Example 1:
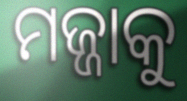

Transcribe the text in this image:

ମଜ୍ଜାକୁ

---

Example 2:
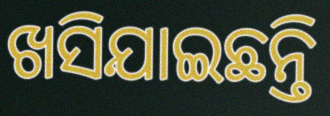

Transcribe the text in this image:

ଖସିଯାଇଛନ୍ତି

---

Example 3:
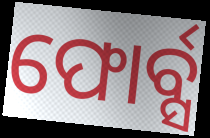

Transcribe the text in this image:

ଫୋର୍ବ୍ସ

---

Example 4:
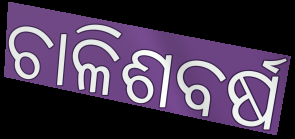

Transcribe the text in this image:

ଚାଳିଶବର୍ଷ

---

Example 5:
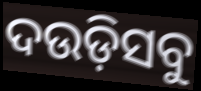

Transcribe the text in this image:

ଦଉଡ଼ିସବୁ